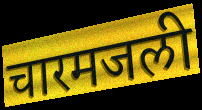
चारमजली